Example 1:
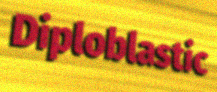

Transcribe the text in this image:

Diploblastic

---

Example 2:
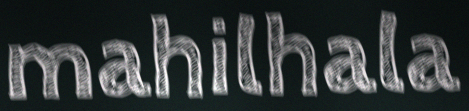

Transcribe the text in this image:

mahilhala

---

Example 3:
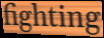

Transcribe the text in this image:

fighting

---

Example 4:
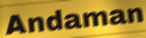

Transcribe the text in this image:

Andaman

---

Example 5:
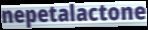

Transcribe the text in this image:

nepetalactone